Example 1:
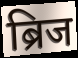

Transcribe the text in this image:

ब्रिज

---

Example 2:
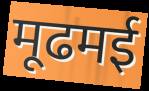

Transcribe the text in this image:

मूढमई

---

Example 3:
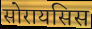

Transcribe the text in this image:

सोरायसिस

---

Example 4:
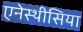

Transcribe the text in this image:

एनेस्थीसिया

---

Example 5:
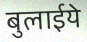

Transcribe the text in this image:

बुलाईये